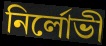
নির্লোভী